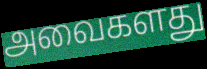
அவைகளது